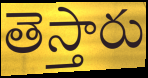
తెస్తారు